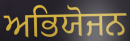
ਅਭਿਯੋਜਨ